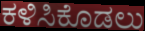
ಕಳಿಸಿಕೊಡಲು